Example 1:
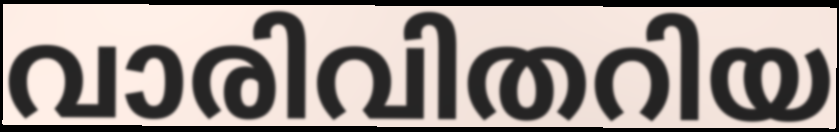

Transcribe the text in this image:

വാരിവിതറിയ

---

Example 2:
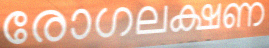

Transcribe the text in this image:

രോഗലക്ഷണ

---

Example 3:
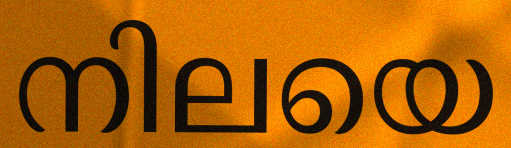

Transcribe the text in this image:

നിലയെ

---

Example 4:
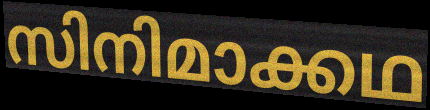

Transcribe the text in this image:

സിനിമാക്കഥ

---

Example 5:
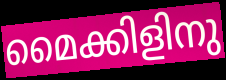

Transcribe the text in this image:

മൈക്കിളിനു